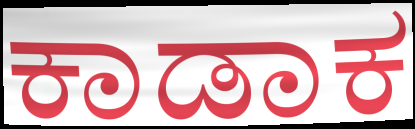
ಕಾಡಾಕ